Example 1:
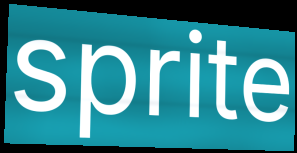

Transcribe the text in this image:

sprite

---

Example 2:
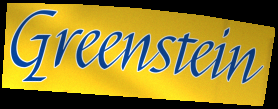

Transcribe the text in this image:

Greenstein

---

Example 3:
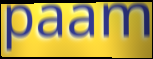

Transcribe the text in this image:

paam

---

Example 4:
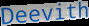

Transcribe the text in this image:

Deevith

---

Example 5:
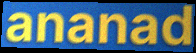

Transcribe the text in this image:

ananad